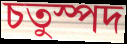
চতুস্পদ